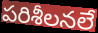
పరిశీలనలే